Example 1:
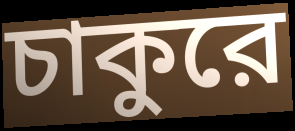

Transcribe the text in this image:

চাকুরে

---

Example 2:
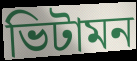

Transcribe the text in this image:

ভিটামন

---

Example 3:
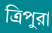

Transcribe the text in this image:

ত্রিপুরা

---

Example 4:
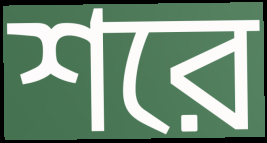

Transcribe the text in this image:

শরে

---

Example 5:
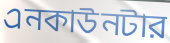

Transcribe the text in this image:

এনকাউনটার